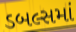
ડબલ્સમાં